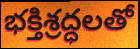
భక్తిశ్రద్ధలతో